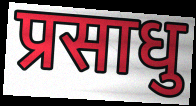
प्रसाधु